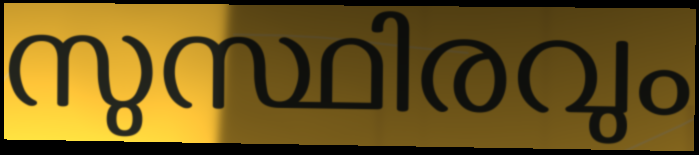
സുസ്ഥിരവും